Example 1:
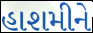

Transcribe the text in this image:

હાશમીને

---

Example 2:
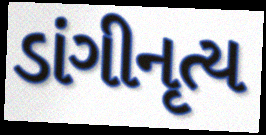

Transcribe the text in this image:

ડાંગીનૃત્ય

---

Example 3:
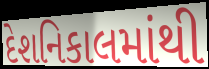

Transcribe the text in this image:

દેશનિકાલમાંથી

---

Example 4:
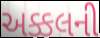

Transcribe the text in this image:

અક્કલની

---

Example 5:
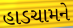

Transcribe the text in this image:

હાડચામને